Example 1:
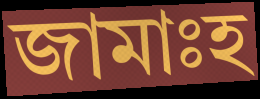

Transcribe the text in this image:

জামাঃহ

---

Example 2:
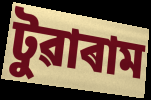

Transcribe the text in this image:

টুৱাৰাম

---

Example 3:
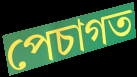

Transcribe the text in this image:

পেচাগত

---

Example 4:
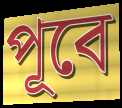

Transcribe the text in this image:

পূবে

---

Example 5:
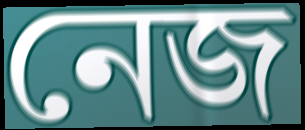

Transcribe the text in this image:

নেজ